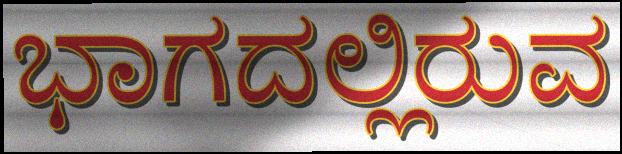
ಭಾಗದಲ್ಲಿರುವ